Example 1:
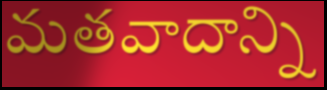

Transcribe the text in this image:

మతవాదాన్ని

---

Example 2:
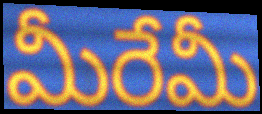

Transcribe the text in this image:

మీరేమీ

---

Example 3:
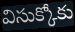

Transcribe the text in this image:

విసుక్కోకు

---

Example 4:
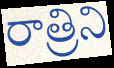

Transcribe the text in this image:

రాత్రిని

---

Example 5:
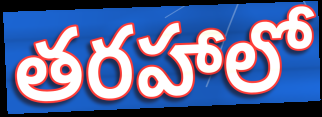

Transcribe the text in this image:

తరహాలో